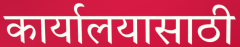
कार्यालयासाठी